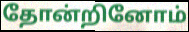
தோன்றினோம்